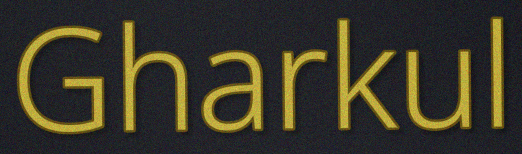
Gharkul